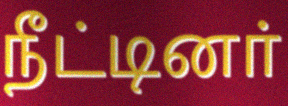
நீட்டினர்